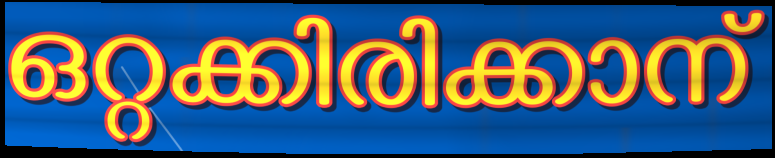
ഒറ്റക്കിരിക്കാന്